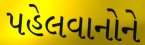
પહેલવાનોને